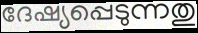
ദേഷ്യപ്പെടുന്നതു